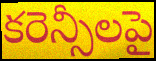
కరెన్సీలపై